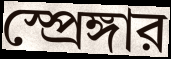
স্প্রেঙ্গার